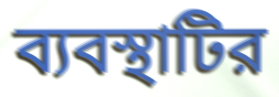
ব্যবস্থাটির